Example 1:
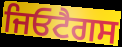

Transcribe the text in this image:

ਜਿਓਟੈਗਸ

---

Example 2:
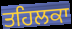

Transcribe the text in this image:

ਤਹਿਲਕਾ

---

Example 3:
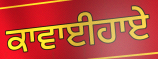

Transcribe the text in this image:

ਕਾਵਾਈਹਾਏ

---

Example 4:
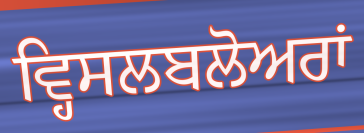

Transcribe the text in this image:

ਵ੍ਹਿਸਲਬਲੋਅਰਾਂ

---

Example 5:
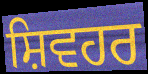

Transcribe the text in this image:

ਸ਼ਿਵਹਰ